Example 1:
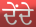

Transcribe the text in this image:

ਦੇਂਦੇ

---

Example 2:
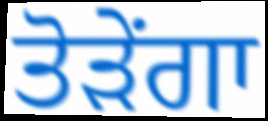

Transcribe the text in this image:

ਤੋੜੇਂਗਾ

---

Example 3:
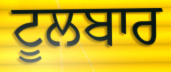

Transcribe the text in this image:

ਟੂਲਬਾਰ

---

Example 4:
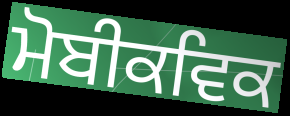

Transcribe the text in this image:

ਮੋਬੀਕਵਿਕ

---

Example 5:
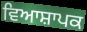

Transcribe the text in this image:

ਵਿਆਸ਼ਾਪਕ